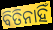
ବିତିନାହିଁ